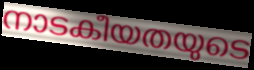
നാടകീയതയുടെ